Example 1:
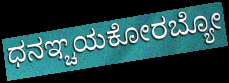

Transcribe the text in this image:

ಧನಞ್ಚಯಕೋರಬ್ಯೋ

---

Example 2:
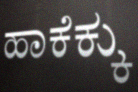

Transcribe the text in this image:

ಹಾಕೆಕ್ಕು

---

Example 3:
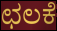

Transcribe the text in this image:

ಛಲಕೆ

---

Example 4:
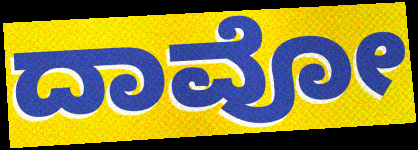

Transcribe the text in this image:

ದಾವೋ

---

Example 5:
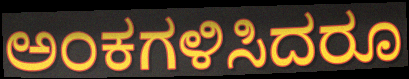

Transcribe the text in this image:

ಅಂಕಗಳಿಸಿದರೂ